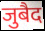
जुबैद